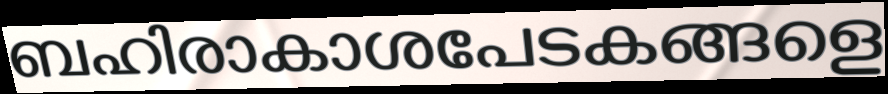
ബഹിരാകാശപേടകങ്ങളെ